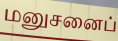
மனுசனைப்